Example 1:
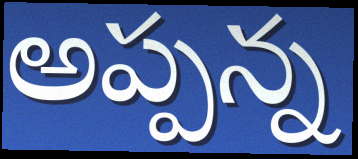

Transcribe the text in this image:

అప్పన్న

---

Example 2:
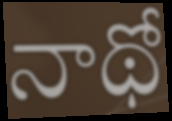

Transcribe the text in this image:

నాథో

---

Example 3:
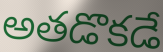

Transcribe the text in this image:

అతడొకడే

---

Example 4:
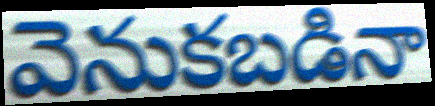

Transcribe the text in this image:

వెనుకబడినా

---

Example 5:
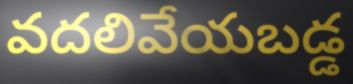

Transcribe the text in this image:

వదలివేయబడ్డ